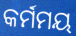
କର୍ମମୟ